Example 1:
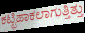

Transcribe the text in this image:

ಕಟ್ಟಿಹಾಕಲಾಗುತ್ತಿತ್ತು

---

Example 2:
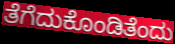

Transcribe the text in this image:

ತೆಗೆದುಕೊಂಡಿತೆಂದು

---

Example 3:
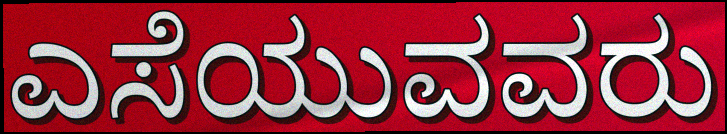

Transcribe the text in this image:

ಎಸೆಯುವವರು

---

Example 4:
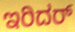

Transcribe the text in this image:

ಇರಿದರ್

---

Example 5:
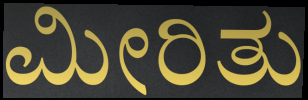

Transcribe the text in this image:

ಮೀರಿತು